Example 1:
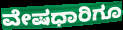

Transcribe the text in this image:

ವೇಷಧಾರಿಗೂ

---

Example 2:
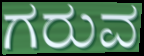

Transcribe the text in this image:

ಗರುವ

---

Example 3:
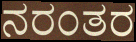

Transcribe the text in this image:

ನರಂತರ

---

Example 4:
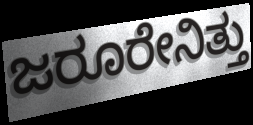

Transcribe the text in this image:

ಜರೂರೇನಿತ್ತು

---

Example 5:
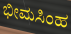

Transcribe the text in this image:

ಭೀಮಸಿಂಹ